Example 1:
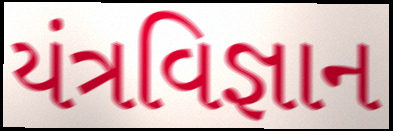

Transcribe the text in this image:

યંત્રવિજ્ઞાન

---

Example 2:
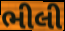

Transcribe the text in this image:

ભીલી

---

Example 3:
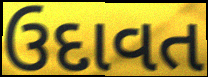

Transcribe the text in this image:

ઉદાવત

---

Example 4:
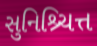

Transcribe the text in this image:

સુનિશ્ર્ચિત્ત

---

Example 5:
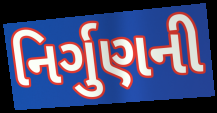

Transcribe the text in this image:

નિર્ગુણની